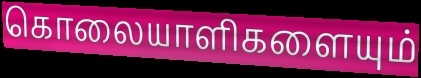
கொலையாளிகளையும்